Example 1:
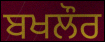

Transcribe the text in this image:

ਬਖਲੌਰ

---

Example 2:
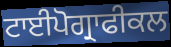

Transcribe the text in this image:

ਟਾਈਪੋਗ੍ਰਾਫੀਕਲ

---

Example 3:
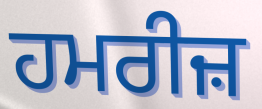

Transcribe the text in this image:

ਹਮਰੀਜ਼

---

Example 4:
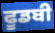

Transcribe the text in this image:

ਫੂਡਬੀ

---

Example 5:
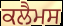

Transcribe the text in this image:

ਕਲੈਮਸ